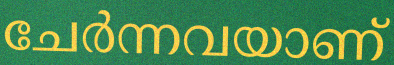
ചേർന്നവയാണ്